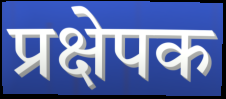
प्रक्षेपक